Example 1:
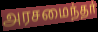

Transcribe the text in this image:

அரசமைந்தர்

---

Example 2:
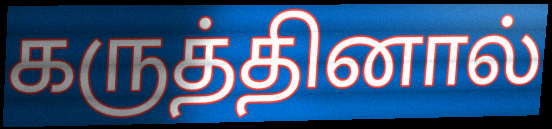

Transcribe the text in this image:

கருத்தினால்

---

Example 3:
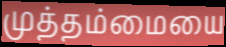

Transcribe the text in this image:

முத்தம்மையை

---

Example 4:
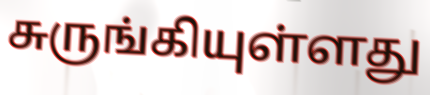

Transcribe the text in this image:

சுருங்கியுள்ளது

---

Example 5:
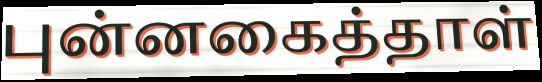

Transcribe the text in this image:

புன்னகைத்தாள்